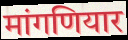
मांगणियार